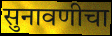
सुनावणीचा